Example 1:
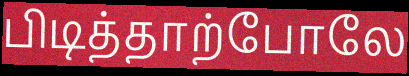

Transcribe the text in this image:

பிடித்தாற்போலே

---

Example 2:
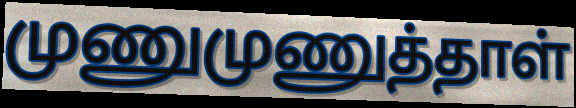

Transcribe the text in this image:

முணுமுணுத்தாள்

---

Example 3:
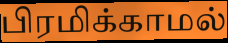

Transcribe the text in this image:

பிரமிக்காமல்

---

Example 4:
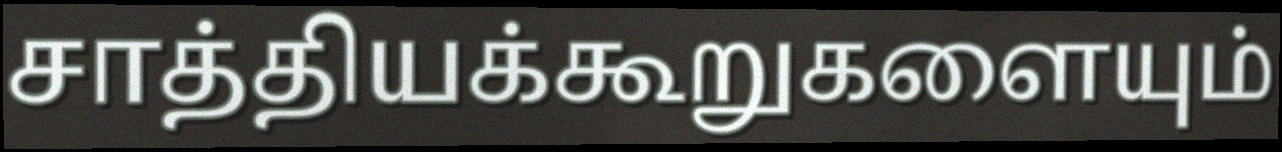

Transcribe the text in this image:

சாத்தியக்கூறுகளையும்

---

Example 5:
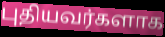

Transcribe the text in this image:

புதியவர்களாக